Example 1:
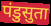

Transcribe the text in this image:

पंडुसुता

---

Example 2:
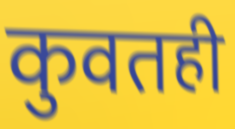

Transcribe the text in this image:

कुवतही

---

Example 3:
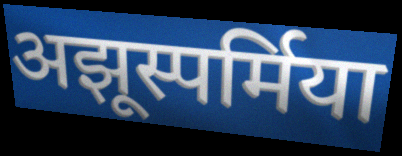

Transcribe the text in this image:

अझूस्पर्मिया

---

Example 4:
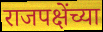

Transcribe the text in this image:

राजपक्षेंच्या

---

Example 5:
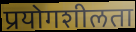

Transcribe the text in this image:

प्रयोगशीलता